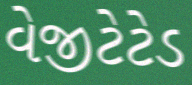
વેજીટેટેડ